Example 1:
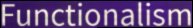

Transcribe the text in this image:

Functionalism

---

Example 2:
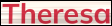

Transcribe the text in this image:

Theresa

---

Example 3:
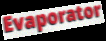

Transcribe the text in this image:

Evaporator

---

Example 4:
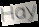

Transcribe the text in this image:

Hay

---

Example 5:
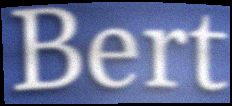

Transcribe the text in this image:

Bert